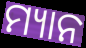
ମ୍ୟାନ